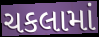
ચકલામાં